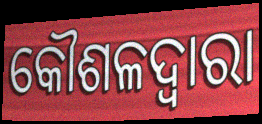
କୌଶଳଦ୍ୱାରା